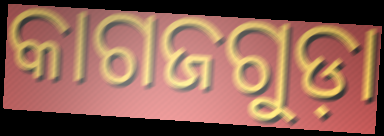
କାଗଜଗୁଡ଼ା